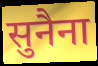
सुनैना